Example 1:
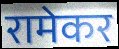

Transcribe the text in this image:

रामेकर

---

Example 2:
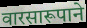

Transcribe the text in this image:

वारसारूपाने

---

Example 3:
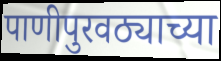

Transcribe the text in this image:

पाणीपुरवठ्याच्या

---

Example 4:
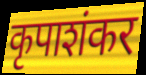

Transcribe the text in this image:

कृपाशंकर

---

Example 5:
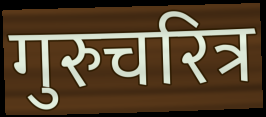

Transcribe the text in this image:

गुरुचरित्र